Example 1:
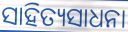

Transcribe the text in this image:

ସାହିତ୍ୟସାଧନା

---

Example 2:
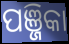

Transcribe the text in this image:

ପଞ୍ଜିକା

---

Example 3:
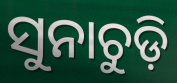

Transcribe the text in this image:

ସୁନାଚୁଡ଼ି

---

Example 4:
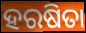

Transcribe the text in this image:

ହରଷିତା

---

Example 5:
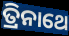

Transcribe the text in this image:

ତ୍ରିନାଥେ